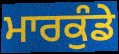
ਮਾਰਕੁੰਡੇ